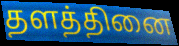
தளத்தினை